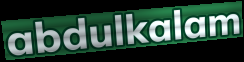
abdulkalam